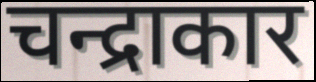
चन्द्राकार